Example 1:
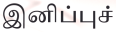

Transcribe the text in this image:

இனிப்புச்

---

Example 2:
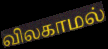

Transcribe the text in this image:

விலகாமல்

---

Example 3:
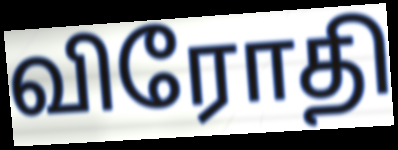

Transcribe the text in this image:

விரோதி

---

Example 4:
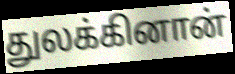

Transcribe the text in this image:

துலக்கினான்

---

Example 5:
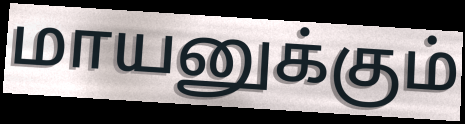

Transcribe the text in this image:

மாயனுக்கும்